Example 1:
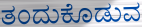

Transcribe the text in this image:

ತಂದುಕೊಡುವ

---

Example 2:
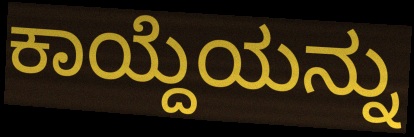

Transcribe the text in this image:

ಕಾಯ್ದೆಯನ್ನು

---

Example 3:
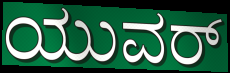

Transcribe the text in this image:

ಯುವರ್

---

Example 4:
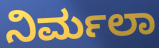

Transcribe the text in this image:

ನಿರ್ಮಲಾ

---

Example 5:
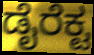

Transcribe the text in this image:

ಡೈರೆಕ್ಟ